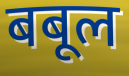
बबूल